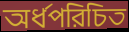
অর্ধপরিচিত